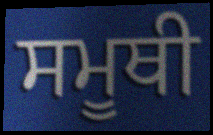
ਸਮੂਥੀ